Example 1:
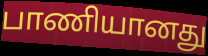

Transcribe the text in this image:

பாணியானது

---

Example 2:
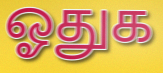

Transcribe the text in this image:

ஓதுக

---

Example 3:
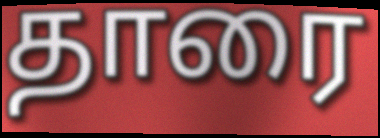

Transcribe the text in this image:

தாரை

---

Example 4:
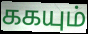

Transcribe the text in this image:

ககயும்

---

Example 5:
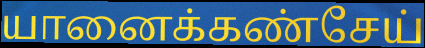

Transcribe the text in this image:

யானைக்கண்சேய்